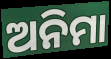
ଅନିମା